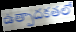
ఉత్పాదకతలో